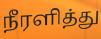
நீரளித்து